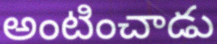
అంటించాడు